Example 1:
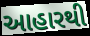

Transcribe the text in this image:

આહારથી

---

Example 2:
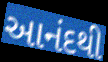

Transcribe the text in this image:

આનંદથી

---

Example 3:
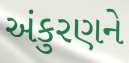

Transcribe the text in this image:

અંકુરણને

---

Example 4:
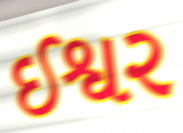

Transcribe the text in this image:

ઈશ્વર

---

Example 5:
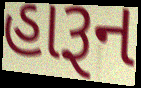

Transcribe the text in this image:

હારૂન